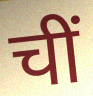
चीं